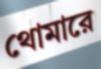
থোমারে